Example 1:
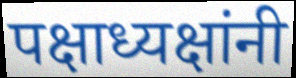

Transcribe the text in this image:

पक्षाध्यक्षांनी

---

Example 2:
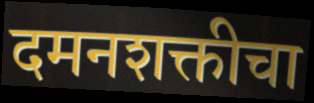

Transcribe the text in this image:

दमनशक्तीचा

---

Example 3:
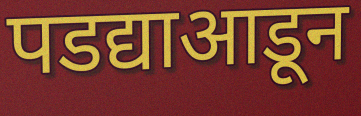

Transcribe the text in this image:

पडद्याआडून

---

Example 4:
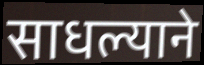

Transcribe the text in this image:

साधल्याने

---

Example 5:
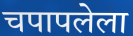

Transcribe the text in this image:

चपापलेला